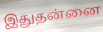
இதுதன்னை